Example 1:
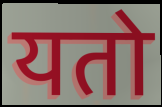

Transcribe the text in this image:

यतो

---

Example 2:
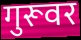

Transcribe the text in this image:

गुरूवर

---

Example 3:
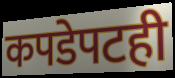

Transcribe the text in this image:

कपडेपटही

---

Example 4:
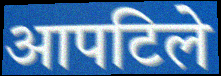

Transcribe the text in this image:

आपटिले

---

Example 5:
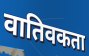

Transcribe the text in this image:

वातिवकता